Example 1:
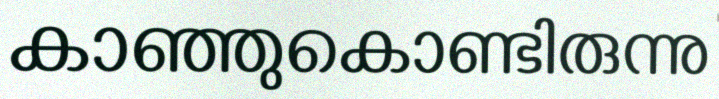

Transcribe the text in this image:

കാഞ്ഞുകൊണ്ടിരുന്നു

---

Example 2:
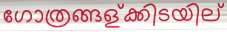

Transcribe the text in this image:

ഗോത്രങ്ങള്ക്കിടയില്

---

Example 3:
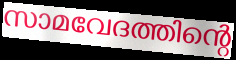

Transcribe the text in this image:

സാമവേദത്തിന്റെ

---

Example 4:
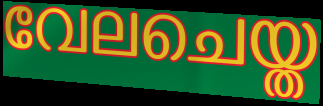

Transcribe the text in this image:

വേലചെയ്ത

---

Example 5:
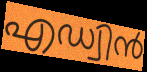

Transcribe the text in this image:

എഡ്വിൻ